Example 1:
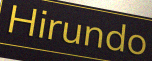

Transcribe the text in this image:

Hirundo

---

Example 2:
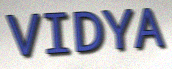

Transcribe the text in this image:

VIDYA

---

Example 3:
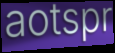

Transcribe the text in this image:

aotspr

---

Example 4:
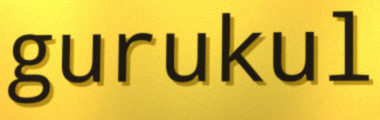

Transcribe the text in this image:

gurukul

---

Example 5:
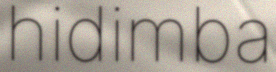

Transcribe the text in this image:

hidimba